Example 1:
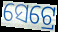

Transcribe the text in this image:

ସେଟ୍ରେ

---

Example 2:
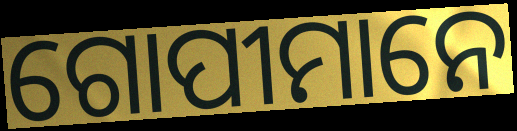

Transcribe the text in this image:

ଗୋପୀମାନେ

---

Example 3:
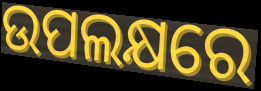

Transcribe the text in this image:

ଉପଲକ୍ଷରେ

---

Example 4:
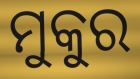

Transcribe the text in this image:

ମୁକୁର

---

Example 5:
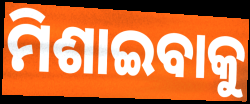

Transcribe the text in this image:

ମିଶାଇବାକୁ